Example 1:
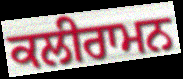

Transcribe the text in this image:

ਕਲੀਰਾਮਨ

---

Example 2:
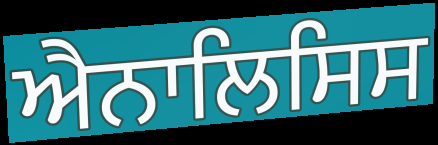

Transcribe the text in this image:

ਐਨਾਲਿਸਿਸ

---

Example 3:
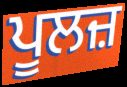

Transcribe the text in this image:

ਪੂਲਜ਼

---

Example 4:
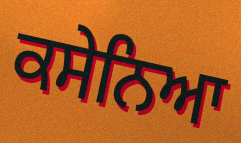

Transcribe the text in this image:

ਕਸੇਨਿਆ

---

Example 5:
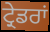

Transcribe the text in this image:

ਟ੍ਰੇਡਰਾਂ